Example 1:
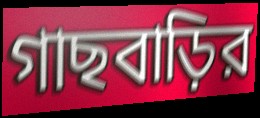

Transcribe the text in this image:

গাছবাড়ির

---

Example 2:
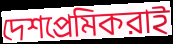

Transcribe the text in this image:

দেশপ্রেমিকরাই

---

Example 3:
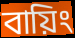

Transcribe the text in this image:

বায়িং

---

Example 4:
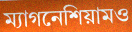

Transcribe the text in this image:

ম্যাগনেশিয়ামও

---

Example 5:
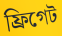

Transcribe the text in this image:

ফ্রিগেট